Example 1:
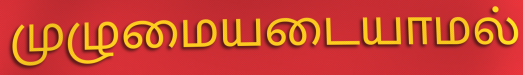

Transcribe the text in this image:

முழுமையடையாமல்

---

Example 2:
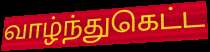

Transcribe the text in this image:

வாழ்ந்துகெட்ட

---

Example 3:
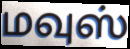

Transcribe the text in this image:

மவுஸ்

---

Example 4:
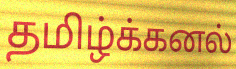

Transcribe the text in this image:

தமிழ்க்கனல்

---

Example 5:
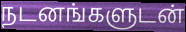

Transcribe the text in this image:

நடனங்களுடன்